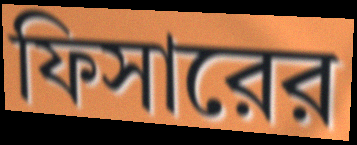
ফিসারের